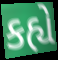
કહ્યે